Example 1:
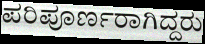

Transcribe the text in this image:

ಪರಿಪೂರ್ಣರಾಗಿದ್ದರು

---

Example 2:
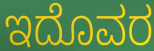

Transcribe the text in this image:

ಇದೊವರ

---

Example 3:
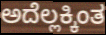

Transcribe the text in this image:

ಅದೆಲ್ಲಕ್ಕಿಂತ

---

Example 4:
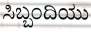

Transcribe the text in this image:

ಸಿಬ್ಬಂದಿಯು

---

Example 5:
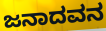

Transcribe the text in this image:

ಜನಾದವನ